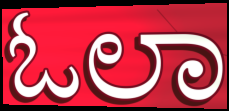
ಓಲಾ